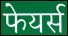
फेयर्स